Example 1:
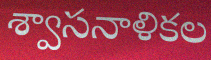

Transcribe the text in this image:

శ్వాసనాళికల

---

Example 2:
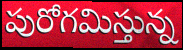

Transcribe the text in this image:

పురోగమిస్తున్న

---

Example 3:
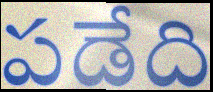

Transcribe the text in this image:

పడేది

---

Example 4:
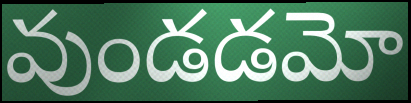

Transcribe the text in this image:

వుండడమో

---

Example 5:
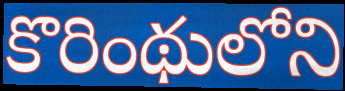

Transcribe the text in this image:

కొరింథులోని